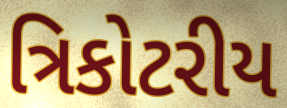
ત્રિકોટરીય